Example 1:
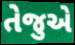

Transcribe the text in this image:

તેજુએ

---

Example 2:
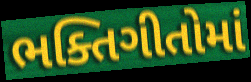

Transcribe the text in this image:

ભક્તિગીતોમાં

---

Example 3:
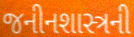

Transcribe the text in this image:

જનીનશાસ્ત્રની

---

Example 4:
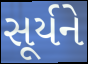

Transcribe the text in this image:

સૂર્યને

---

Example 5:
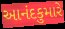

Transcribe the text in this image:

આનંદકુમારે